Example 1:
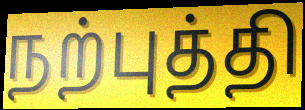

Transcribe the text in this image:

நற்புத்தி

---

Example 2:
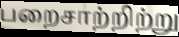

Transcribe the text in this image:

பறைசாற்றிற்று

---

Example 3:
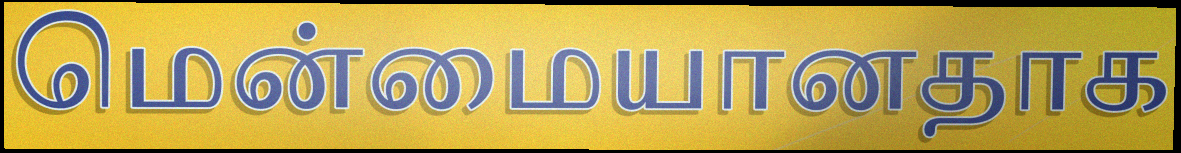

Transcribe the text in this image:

மென்மையானதாக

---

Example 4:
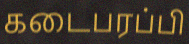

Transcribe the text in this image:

கடைபரப்பி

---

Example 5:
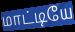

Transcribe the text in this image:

மாட்டியே